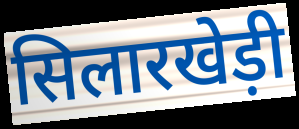
सिलारखेड़ी